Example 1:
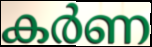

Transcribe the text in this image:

കർണ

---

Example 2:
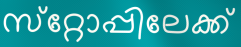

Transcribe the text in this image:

സ്‌റ്റോപ്പിലേക്ക്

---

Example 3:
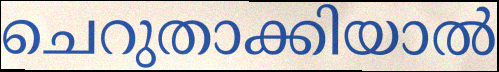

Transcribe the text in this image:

ചെറുതാക്കിയാൽ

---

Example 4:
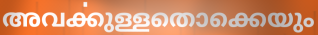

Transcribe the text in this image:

അവൎക്കുള്ളതൊക്കെയും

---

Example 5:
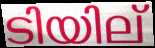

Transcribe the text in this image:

ടിയില്